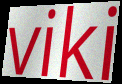
viki